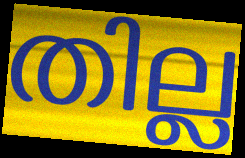
തില്ല